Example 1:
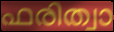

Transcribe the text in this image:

ഫരിത്വാ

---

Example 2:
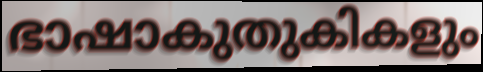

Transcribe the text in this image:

ഭാഷാകുതുകികളും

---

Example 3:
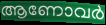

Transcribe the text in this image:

ആണോവർ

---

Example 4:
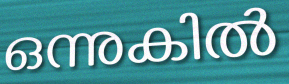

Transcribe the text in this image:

ഒന്നുകിൽ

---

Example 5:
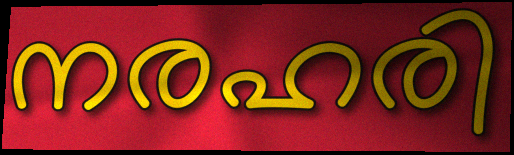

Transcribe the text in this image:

നരഹരി